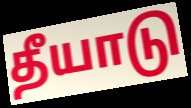
தீயாடு